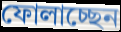
ফোলাচ্ছেন